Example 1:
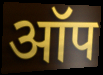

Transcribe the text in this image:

ऑप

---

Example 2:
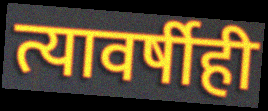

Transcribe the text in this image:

त्यावर्षीही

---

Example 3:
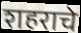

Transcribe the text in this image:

शहराचे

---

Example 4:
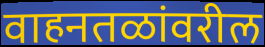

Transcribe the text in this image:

वाहनतळांवरील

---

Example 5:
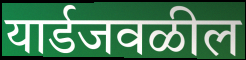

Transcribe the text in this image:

यार्डजवळील